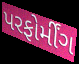
પરફોર્મીંગ